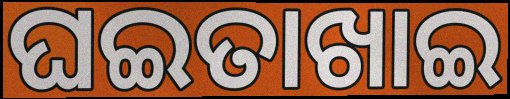
ଘଇତାଖାଇ